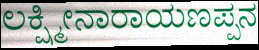
ಲಕ್ಷ್ಮೀನಾರಾಯಣಪ್ಪನ